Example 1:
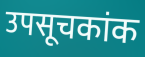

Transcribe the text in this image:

उपसूचकांक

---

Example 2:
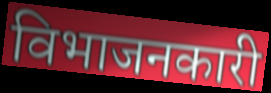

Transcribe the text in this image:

विभाजनकारी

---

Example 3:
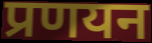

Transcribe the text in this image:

प्रणयन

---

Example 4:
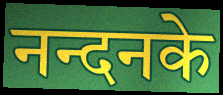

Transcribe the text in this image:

नन्दनके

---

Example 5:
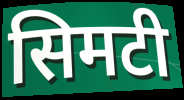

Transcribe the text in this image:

सिमटी